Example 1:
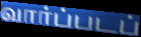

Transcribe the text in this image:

வார்ப்படப்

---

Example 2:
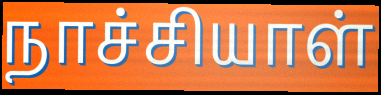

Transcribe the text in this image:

நாச்சியாள்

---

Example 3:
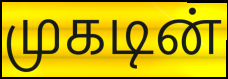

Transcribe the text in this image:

முகடின்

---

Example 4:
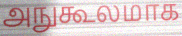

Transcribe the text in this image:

அநுகூலமாக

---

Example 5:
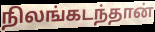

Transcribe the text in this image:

நிலங்கடந்தான்